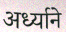
अर्ध्याने